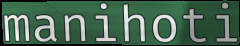
manihoti